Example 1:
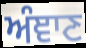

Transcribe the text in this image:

ਅੰਞਾਣ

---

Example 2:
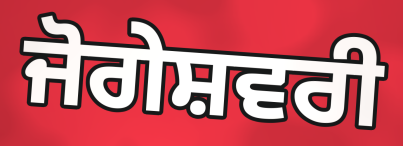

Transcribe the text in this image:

ਜੋਗੇਸ਼ਵਰੀ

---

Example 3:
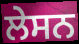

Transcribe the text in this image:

ਲੇਸਨ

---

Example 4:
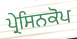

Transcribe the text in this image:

ਪ੍ਰੇਸਿਨਕੋਪ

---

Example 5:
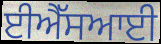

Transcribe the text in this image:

ਈਐੱਸਆਈ